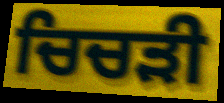
ਚਿਚੜੀ